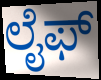
ಲೈಫ್